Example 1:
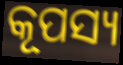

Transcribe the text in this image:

କୂପସ୍ୟ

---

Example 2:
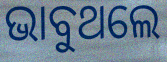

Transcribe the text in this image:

ଭାବୁଥଲେ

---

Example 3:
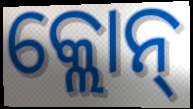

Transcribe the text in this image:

କ୍ଲୋନ୍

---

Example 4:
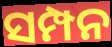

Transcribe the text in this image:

ସମ୍ପନ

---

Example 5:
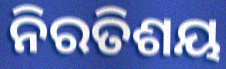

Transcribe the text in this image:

ନିରତିଶୟ